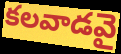
కలవాడవై